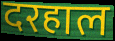
दरहाल